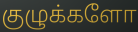
குழுக்களோ